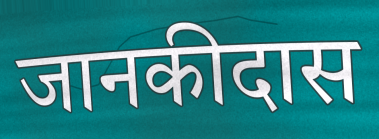
जानकीदास